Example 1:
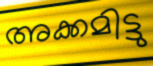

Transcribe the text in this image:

അക്കമിട്ടു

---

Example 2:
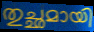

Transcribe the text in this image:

തുച്ഛമായി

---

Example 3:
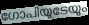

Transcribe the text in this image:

ഗോപിയുടേയും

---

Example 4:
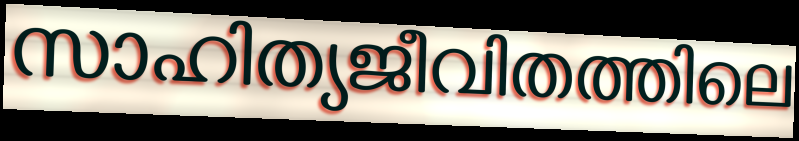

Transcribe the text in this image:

സാഹിത്യജീവിതത്തിലെ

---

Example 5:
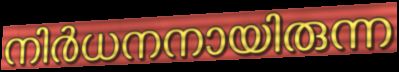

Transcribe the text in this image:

നിർധനനായിരുന്ന